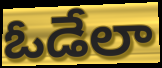
ఓడేలా